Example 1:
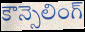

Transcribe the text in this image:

కౌన్సెలింగ్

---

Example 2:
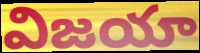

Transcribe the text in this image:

విజయా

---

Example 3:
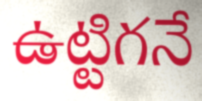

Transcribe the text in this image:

ఉట్టిగనే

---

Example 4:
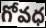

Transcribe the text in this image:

గోవధ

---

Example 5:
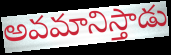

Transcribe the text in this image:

అవమానిస్తాడు